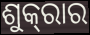
ଶୁକ୍‌ରାର